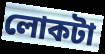
লোকটা